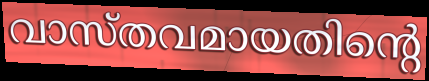
വാസ്തവമായതിന്റെ